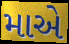
માએ